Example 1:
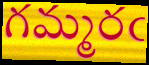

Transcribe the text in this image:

గమ్మరఁ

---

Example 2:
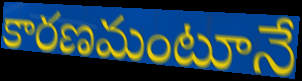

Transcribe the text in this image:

కారణమంటూనే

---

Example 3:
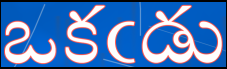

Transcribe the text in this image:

ఒకఁడు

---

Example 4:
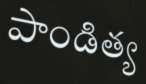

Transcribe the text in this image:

పాండిత్య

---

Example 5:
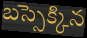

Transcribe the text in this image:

బస్సెక్కిన